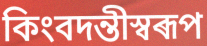
কিংবদন্তীস্বৰূপ